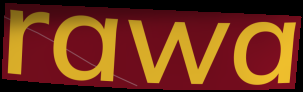
rawa